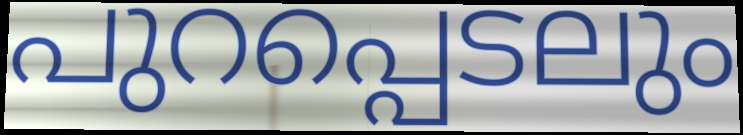
പുറപ്പെടലും